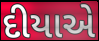
દીયાએ